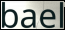
bael